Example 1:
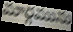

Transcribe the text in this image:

మార్గమును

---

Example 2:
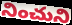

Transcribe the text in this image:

నించుని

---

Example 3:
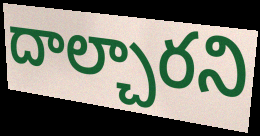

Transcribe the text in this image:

దాల్చారని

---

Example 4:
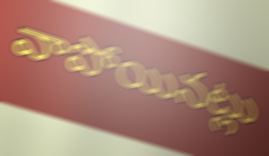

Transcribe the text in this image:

వాపోయినట్లు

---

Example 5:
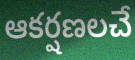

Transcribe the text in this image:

ఆకర్షణలచే